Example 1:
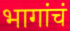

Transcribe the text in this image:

भागांचं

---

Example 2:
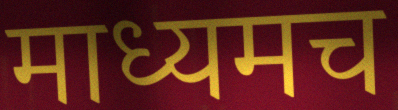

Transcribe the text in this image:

माध्यमच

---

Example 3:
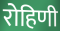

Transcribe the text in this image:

रोहिणी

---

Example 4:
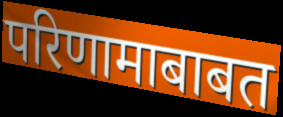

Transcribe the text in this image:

परिणामाबाबत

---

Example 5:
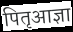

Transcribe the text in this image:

पितृआज्ञा